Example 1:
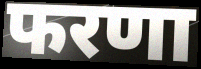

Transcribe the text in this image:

फरणा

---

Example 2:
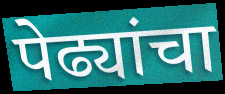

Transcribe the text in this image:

पेढ्यांचा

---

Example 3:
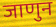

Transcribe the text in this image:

जाणुन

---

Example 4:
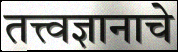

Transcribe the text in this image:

तत्त्वज्ञानाचे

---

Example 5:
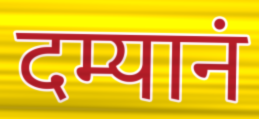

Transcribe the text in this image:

दम्यानं